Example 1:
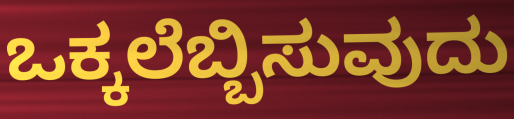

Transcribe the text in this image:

ಒಕ್ಕಲೆಬ್ಬಿಸುವುದು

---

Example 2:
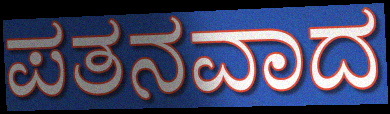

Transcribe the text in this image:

ಪತನವಾದ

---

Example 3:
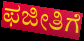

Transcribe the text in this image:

ಫಜೀತಿಗೆ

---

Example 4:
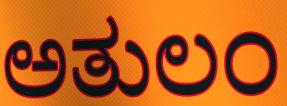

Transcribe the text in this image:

ಅತುಲಂ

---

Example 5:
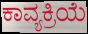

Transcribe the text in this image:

ಕಾವ್ಯಕ್ರಿಯೆ